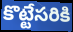
కొట్టేసరికి